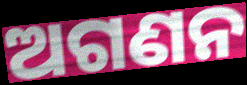
ଅଗଣନ